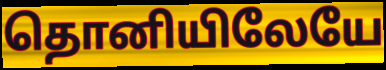
தொனியிலேயே